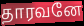
தாரவனே